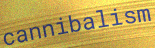
cannibalism